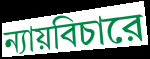
ন্যায়বিচারে